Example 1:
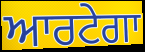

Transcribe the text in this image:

ਆਰਟੇਗਾ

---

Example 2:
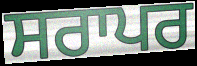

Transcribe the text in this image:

ਸਰਾਪਰ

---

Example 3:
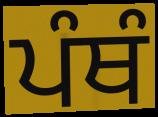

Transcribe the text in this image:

ਪੰਥੰ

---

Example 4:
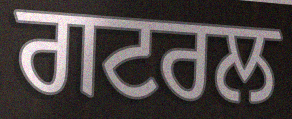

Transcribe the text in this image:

ਗਟਰਲ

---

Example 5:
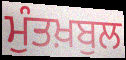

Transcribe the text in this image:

ਮੁੰਤਖ਼ਬੁਲ